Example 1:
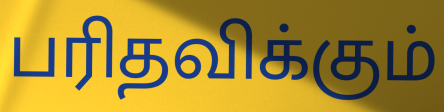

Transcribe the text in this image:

பரிதவிக்கும்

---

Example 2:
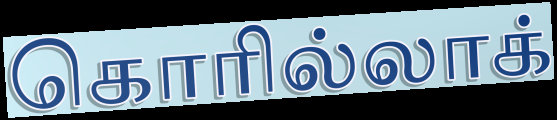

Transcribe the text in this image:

கொரில்லாக்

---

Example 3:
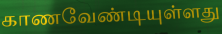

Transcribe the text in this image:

காணவேண்டியுள்ளது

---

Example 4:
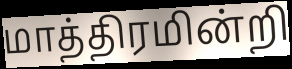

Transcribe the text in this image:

மாத்திரமின்றி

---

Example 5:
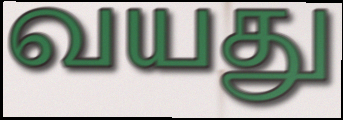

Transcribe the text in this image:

வயது